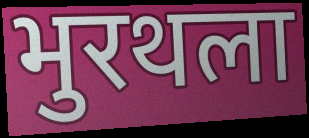
भुरथला